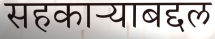
सहकाऱ्याबद्दल